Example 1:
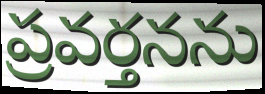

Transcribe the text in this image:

ప్రవర్తనను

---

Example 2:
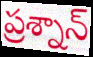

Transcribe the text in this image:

ప్రశ్నాన్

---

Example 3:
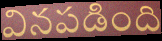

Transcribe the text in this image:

వినపడింది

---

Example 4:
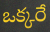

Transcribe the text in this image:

ఒక్కరే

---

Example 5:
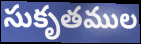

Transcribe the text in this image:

సుకృతముల